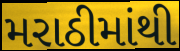
મરાઠીમાંથી